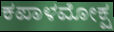
ಕಪಾಳಮೋಕ್ಷ